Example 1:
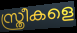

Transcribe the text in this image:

സ്ത്രീകളെ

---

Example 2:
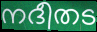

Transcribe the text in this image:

നദീതട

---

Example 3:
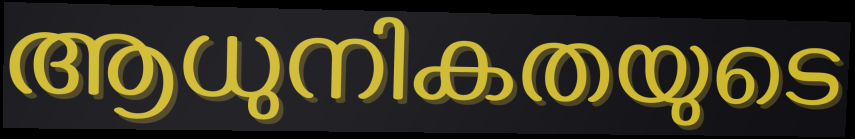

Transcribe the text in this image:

ആധുനികതയുടെ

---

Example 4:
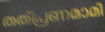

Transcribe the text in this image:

തത്പ്രണമാമി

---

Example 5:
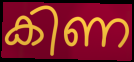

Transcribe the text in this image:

കിണ